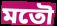
মতৌ